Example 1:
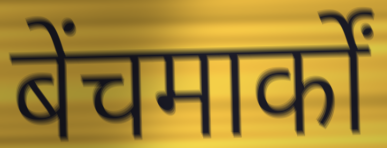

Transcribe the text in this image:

बेंचमार्कों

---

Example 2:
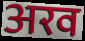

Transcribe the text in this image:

अरव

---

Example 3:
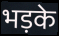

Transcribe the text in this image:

भड़के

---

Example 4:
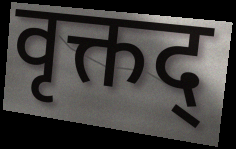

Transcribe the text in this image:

वृक्तद्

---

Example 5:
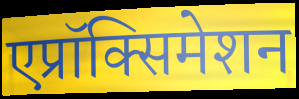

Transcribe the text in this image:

एप्रॉक्सिमेशन